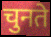
चुनते